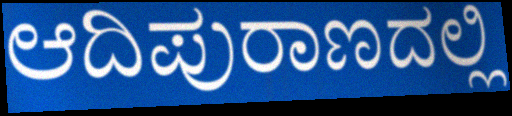
ಆದಿಪುರಾಣದಲ್ಲಿ